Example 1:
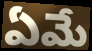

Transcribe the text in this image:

ఏమే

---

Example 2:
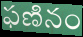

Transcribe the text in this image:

ఫణినం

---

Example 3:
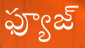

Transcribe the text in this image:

ఫ్యూజ్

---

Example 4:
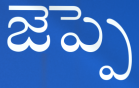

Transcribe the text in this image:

జెప్పె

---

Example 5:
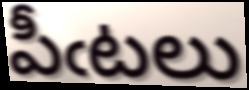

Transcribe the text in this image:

పీఁటలు